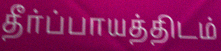
தீர்ப்பாயத்திடம்